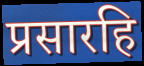
प्रसारहि